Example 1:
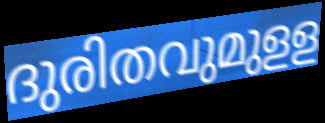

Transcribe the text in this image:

ദുരിതവുമുളള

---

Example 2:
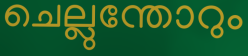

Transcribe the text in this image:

ചെല്ലുന്തോറും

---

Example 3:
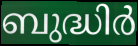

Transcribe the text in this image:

ബുദ്ധിർ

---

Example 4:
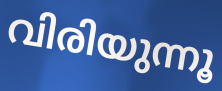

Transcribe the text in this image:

വിരിയുന്നൂ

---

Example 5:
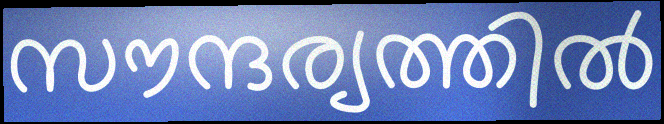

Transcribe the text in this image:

സൗന്ദര്യത്തിൽ